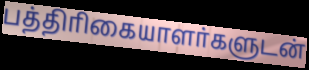
பத்திரிகையாளர்களுடன்